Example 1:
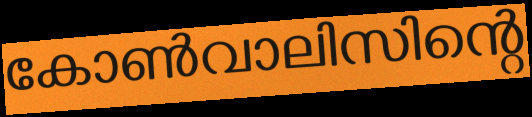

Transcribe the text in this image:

കോൺവാലിസിന്റെ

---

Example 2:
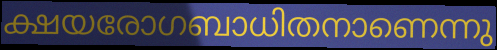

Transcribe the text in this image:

ക്ഷയരോഗബാധിതനാണെന്നു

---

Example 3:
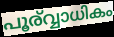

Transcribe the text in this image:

പൂര്വ്വാധികം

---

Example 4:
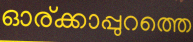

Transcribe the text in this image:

ഓര്ക്കാപ്പുറത്തെ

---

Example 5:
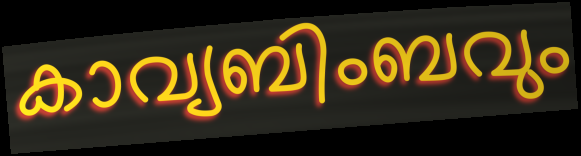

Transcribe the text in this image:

കാവ്യബിംബവും